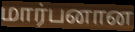
மார்பனான